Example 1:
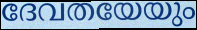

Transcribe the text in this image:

ദേവതയേയും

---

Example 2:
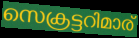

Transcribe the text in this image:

സെക്രട്ടറിമാര്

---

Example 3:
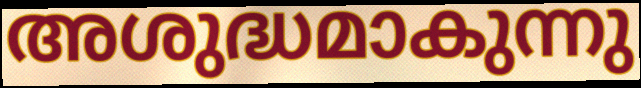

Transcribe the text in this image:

അശുദ്ധമാകുന്നു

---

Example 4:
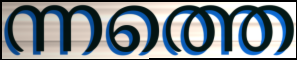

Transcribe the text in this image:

ന്നത്തെ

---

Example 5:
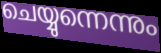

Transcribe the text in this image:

ചെയ്യുന്നെന്നും